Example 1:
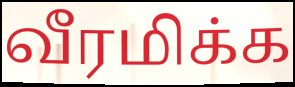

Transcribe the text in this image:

வீரமிக்க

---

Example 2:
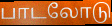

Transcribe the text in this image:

பாடலோடு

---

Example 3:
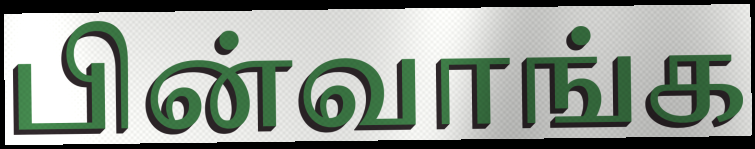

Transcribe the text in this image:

பின்வாங்க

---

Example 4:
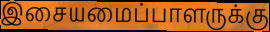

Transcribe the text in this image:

இசையமைப்பாளருக்கு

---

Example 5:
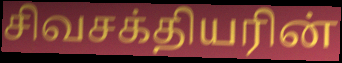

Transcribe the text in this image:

சிவசக்தியரின்